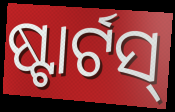
ଷ୍ଟାର୍ଟସ୍